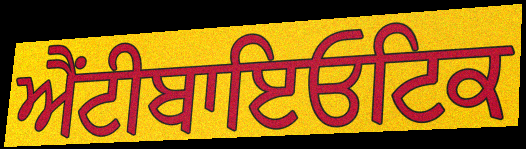
ਐਂਟੀਬਾਇਓਟਿਕ